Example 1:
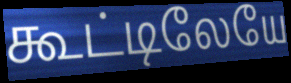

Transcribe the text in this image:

கூட்டிலேயே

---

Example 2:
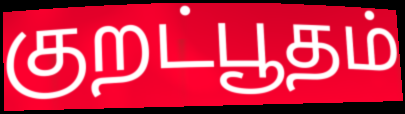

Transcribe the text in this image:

குறட்பூதம்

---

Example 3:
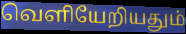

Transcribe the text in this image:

வெளியேறியதும்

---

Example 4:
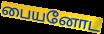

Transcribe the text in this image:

பையனோட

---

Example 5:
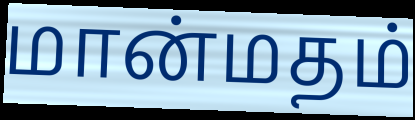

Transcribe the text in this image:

மான்மதம்